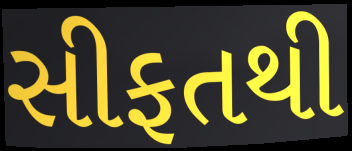
સીફતથી